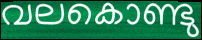
വലകൊണ്ടു